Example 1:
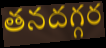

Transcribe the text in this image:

తనదగ్గర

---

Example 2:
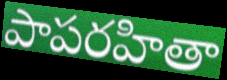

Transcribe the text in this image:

పాపరహితా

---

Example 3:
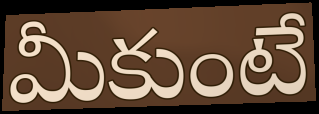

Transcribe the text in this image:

మీకుంటే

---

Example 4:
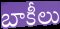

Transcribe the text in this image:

బాకీలు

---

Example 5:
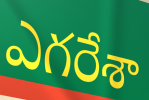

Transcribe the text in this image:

ఎగరేశా